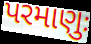
પરમાણુઃ